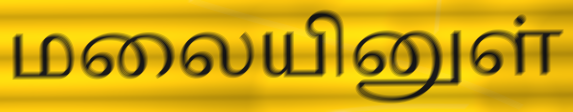
மலையினுள்